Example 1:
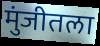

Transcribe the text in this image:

मुंजीतला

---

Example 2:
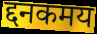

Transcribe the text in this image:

द्दनकमय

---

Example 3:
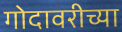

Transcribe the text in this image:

गोदावरीच्या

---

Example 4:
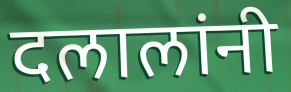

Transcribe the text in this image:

दलालांनी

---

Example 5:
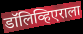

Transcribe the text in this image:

डॉलिव्हिएराला